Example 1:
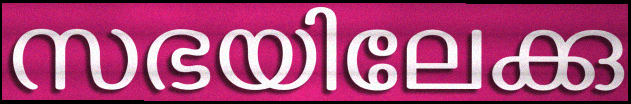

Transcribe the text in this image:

സഭയിലേക്കു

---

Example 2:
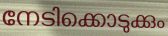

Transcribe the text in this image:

നേടിക്കൊടുക്കും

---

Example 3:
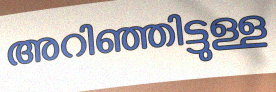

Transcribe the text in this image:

അറിഞ്ഞിട്ടുള്ള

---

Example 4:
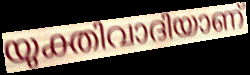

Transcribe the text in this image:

യുക്തിവാദിയാണ്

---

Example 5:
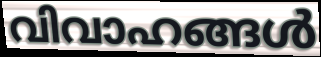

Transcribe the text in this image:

വിവാഹങ്ങൾ